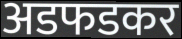
अडफडकर